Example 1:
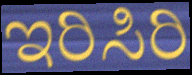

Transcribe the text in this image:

ಇರಿಸಿರಿ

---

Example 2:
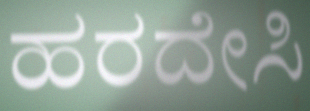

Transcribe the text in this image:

ಹರದೇಸಿ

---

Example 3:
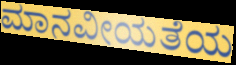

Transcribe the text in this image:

ಮಾನವೀಯತೆಯ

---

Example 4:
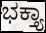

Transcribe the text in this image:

ಭಕ್ತ್ಯಾ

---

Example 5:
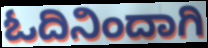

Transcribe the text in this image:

ಓದಿನಿಂದಾಗಿ